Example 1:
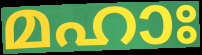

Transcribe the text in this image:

മഹാഃ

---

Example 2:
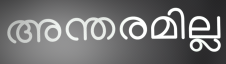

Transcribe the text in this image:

അന്തരമില്ല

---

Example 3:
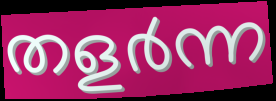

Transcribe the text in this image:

തളർന്ന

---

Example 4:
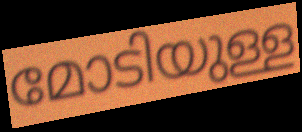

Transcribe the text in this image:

മോടിയുള്ള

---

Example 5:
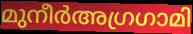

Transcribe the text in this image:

മുനീർഅഗ്രഗാമി